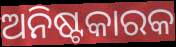
ଅନିଷ୍ଟକାରକ